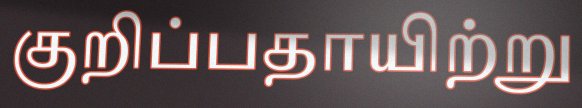
குறிப்பதாயிற்று